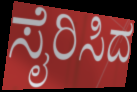
ಸೈರಿಸಿದ